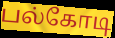
பல்கோடி